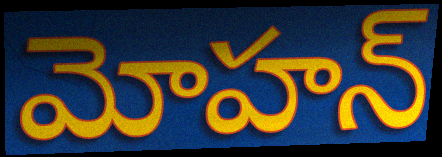
మోహన్